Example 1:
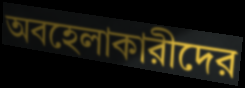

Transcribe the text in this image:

অবহেলাকারীদের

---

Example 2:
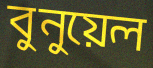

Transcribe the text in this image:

বুনুয়েল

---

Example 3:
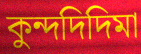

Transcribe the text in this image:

কুন্দদিদিমা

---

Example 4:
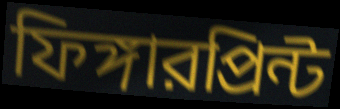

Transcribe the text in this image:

ফিঙ্গারপ্রিন্ট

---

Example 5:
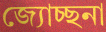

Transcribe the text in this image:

জ্যোচ্ছনা